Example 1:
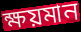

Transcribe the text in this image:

ক্ষয়মান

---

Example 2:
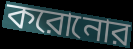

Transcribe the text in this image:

করোনোর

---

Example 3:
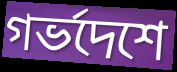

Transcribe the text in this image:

গর্ভদেশে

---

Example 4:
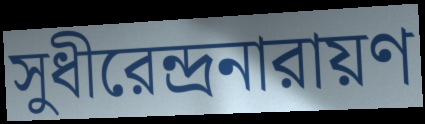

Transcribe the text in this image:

সুধীরেন্দ্রনারায়ণ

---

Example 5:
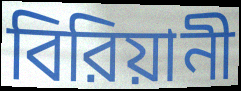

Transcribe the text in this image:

বিরিয়ানী